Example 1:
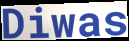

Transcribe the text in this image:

Diwas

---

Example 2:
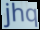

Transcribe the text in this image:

jhq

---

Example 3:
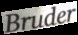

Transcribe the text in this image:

Bruder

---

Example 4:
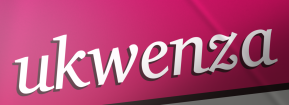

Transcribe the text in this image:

ukwenza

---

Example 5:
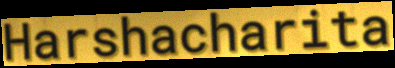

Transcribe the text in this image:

Harshacharita